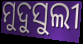
ମୁଦୁସୁଲୀ